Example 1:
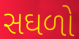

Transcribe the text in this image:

સઘળો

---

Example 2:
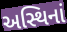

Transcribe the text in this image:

અસ્થિનાં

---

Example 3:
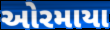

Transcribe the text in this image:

ઓરમાયા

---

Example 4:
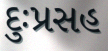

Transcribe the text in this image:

દુઃપ્રસહ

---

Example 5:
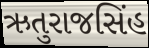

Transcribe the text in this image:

ઋતુરાજસિંહ